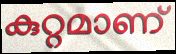
കുറ്റമാണ്